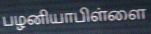
பழனியாபிள்ளை